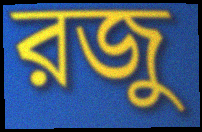
রজু